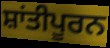
ਸ਼ਾਂਤੀਪੂਰਨ